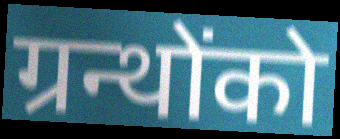
ग्रन्थोंको